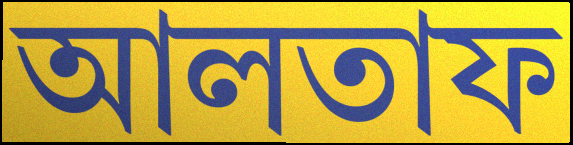
আলতাফ